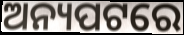
ଅନ୍ୟପଟରେ